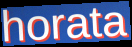
horata